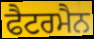
ਫੈਟਰਮੈਨ